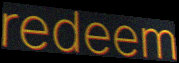
redeem